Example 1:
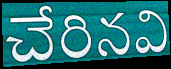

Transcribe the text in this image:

చేరినవి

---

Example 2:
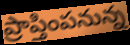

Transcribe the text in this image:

ప్రాప్తింపనున్న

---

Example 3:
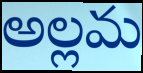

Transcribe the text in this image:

అల్లమ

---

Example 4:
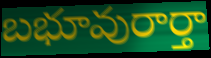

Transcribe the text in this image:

బభూవురార్తా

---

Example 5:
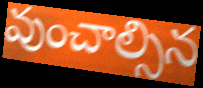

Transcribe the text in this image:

వుంచాల్సిన